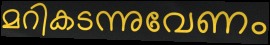
മറികടന്നുവേണം